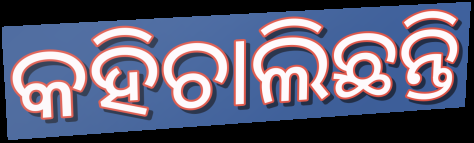
କହିଚାଲିଛନ୍ତି